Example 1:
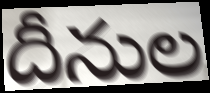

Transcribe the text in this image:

దీనుల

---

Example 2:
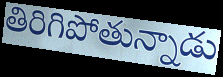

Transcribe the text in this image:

తిరిగిపోతున్నాడు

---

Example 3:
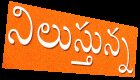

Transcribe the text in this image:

నిలుస్తున్న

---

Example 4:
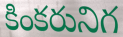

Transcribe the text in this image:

కింకరునిగ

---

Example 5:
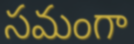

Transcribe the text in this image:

సమంగా